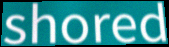
shored